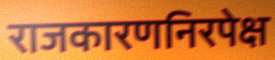
राजकारणनिरपेक्ष